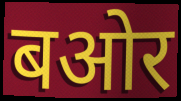
बओर